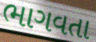
ભાગવતા